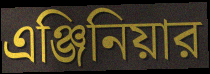
এঞ্জিনিয়ার